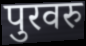
पुरवरु